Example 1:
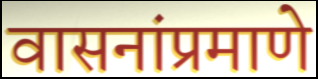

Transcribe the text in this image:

वासनांप्रमाणे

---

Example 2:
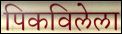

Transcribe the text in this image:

पिकविलेला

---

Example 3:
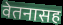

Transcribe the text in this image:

वेतनासह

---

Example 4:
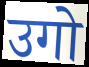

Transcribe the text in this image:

उगो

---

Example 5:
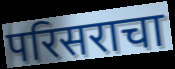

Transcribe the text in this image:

परिसराचा